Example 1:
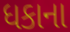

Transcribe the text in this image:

ધકાના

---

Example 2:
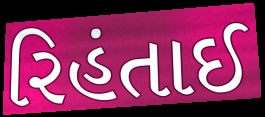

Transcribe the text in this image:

રિહંતાઈ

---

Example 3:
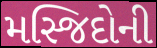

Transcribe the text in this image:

મસ્જિદોની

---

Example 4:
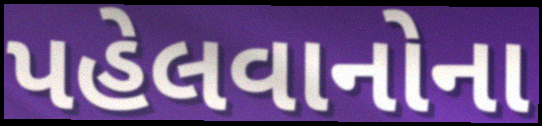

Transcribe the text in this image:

પહેલવાનોના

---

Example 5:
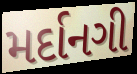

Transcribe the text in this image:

મર્દાનગી